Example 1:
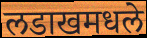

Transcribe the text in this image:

लडाखमधले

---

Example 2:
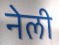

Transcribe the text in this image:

नेली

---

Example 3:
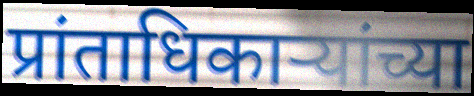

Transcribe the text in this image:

प्रांताधिकाऱ्यांच्या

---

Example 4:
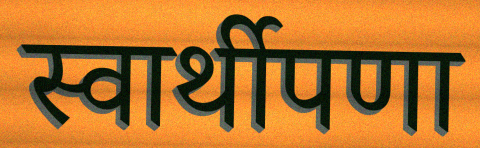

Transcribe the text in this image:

स्वार्थीपणा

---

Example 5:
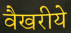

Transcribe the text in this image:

वैखरीये